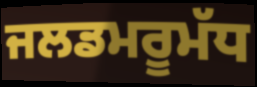
ਜਲਡਮਰੂਮੱਧ